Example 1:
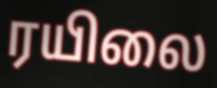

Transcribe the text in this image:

ரயிலை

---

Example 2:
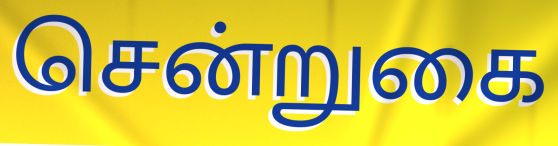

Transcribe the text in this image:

சென்றுகை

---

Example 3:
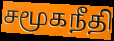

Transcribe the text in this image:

சமூகநீதி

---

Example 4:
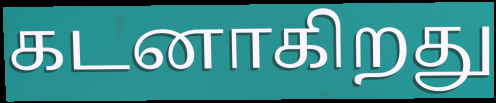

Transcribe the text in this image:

கடனாகிறது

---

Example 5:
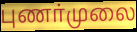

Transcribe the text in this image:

புணர்முலை